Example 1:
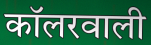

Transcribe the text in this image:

कॉलरवाली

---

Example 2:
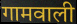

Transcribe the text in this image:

गामवाली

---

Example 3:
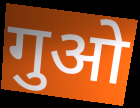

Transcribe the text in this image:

गुओ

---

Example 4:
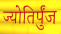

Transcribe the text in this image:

ज्योतिर्पुंज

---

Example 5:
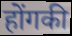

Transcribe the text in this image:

होंगकी